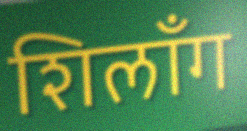
शिलाँग